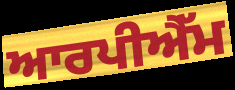
ਆਰਪੀਐੱਮ